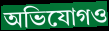
অভিযোগও